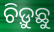
ଚିଡ଼ୁଛୁ